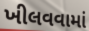
ખીલવવામાં